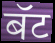
बॅट